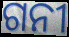
ଗନୀ